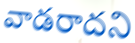
వాడరాదని